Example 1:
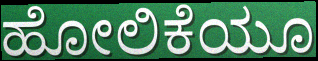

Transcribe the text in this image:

ಹೋಲಿಕೆಯೂ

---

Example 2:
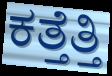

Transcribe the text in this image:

ಕತ್ತೆತ್ತಿ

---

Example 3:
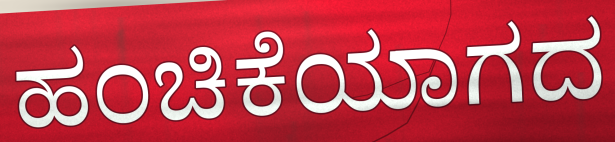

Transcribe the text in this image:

ಹಂಚಿಕೆಯಾಗದ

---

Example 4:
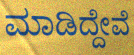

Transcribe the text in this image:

ಮಾಡಿದ್ದೇವೆ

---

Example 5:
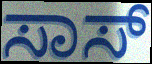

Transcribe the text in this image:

ಸಾಸ್